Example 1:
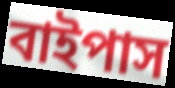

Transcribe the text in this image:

বাইপাস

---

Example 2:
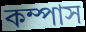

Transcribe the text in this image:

কম্পাস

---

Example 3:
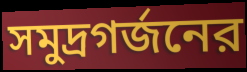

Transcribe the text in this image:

সমুদ্রগর্জনের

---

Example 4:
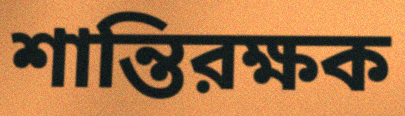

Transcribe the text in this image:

শান্তিরক্ষক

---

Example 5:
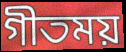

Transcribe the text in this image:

গীতময়